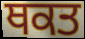
ਥਕਤ